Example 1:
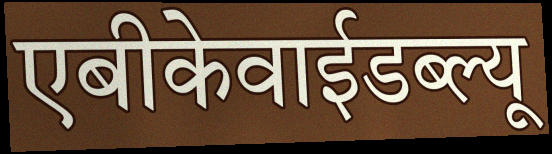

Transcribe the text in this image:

एबीकेवाईडब्ल्यू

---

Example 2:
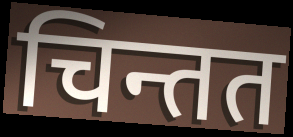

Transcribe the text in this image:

चिन्तत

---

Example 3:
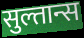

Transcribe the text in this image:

सुल्तान्स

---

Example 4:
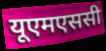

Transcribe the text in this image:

यूएमएससी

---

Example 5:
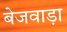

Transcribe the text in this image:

बेजवाड़ा